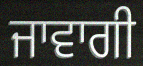
ਜਾਵਾਗੀ